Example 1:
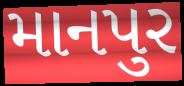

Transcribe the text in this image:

માનપુર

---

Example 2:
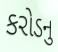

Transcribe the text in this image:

કરોડનુ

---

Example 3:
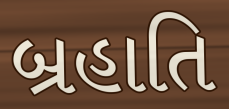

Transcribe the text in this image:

બ્રહાતિ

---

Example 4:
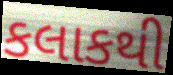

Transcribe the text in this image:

કલાકથી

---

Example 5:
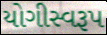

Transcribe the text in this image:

યોગીસ્વરૂપ